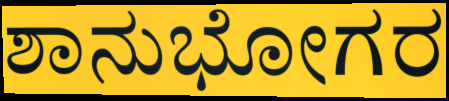
ಶಾನುಭೋಗರ